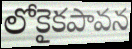
లోకైకపావన